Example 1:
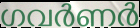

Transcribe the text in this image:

ഗവർണർ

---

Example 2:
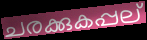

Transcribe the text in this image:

ചരക്കുകപ്പല്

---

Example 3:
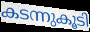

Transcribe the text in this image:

കടന്നുകൂടി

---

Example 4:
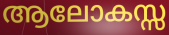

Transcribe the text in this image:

ആലോകസ്സ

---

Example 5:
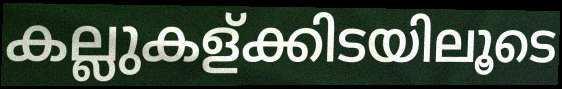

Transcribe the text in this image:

കല്ലുകള്ക്കിടയിലൂടെ